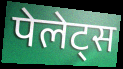
पेलेट्स